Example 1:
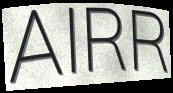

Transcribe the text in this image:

AIRR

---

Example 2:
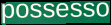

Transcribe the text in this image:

possesso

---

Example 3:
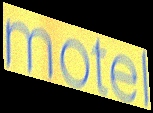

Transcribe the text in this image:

motel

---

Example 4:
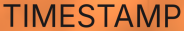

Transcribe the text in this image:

TIMESTAMP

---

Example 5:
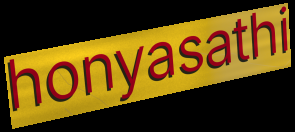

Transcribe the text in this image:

honyasathi